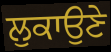
ਲੁਕਾਉਣੇ